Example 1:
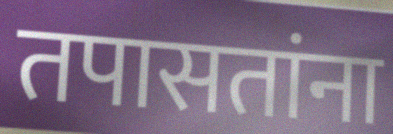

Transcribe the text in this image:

तपासतांना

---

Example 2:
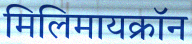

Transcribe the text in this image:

मिलिमायक्रॉन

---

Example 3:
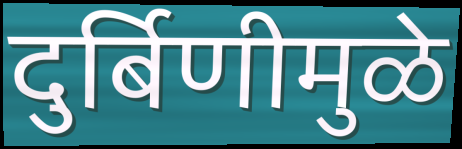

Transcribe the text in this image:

दुर्बिणीमुळे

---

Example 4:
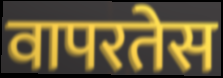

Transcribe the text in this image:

वापरतेस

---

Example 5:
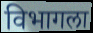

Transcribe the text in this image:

विभागला